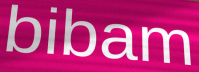
bibam